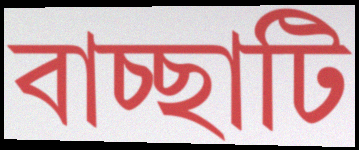
বাচ্ছাটি